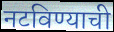
नटविण्याची